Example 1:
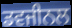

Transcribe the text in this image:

ਡਵਜੀਨਲ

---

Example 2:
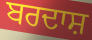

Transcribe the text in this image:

ਬਰਦਾਸ਼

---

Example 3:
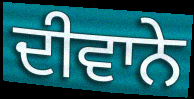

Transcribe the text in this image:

ਦੀਵਾਨੇ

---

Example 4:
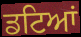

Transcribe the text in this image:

ਡਟਿਆਂ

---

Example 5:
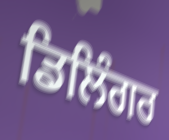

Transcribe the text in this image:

ਡਿਲਿੰਗਰ